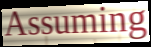
Assuming